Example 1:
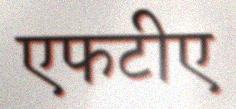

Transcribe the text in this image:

एफटीए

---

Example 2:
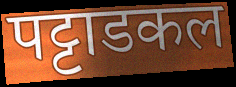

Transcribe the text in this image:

पट्टाडकल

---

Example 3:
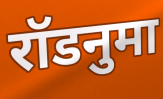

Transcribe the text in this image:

रॉडनुमा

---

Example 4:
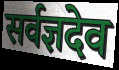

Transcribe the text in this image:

सर्वज्ञदेव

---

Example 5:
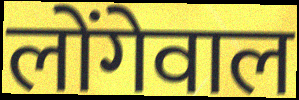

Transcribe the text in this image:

लोंगेवाल